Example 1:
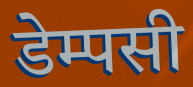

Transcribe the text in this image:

डेम्पसी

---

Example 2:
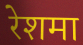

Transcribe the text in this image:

रेशमा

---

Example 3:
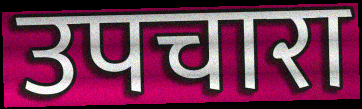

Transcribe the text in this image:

उपचारा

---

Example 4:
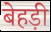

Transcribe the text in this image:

बेहड़ी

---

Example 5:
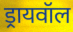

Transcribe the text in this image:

ड्रायवॉल